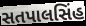
સતપાલસિંહ